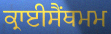
ਕ੍ਰਾਈਸੈਂਥਮਮ